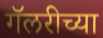
गॅलरीच्या